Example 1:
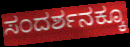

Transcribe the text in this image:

ಸಂದರ್ಶನಕ್ಕೂ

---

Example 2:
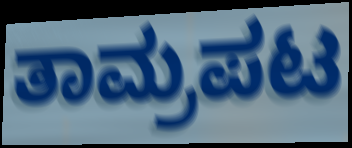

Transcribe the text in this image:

ತಾಮ್ರಪಟ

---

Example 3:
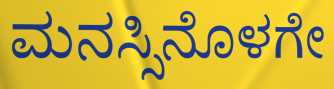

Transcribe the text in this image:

ಮನಸ್ಸಿನೊಳಗೇ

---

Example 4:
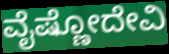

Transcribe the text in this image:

ವೈಷ್ಣೋದೇವಿ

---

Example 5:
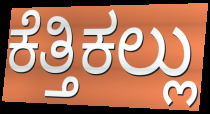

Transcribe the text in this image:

ಕೆತ್ತಿಕಲ್ಲು